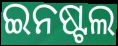
ଇନଷ୍ଟଲ